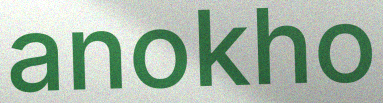
anokho